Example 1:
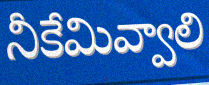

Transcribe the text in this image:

నీకేమివ్వాలి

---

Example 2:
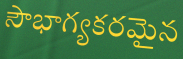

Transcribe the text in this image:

సౌభాగ్యకరమైన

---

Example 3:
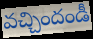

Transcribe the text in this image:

వచ్చిందండీ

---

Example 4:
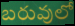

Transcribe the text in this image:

బరువులో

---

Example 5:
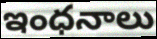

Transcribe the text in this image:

ఇంధనాలు